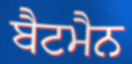
ਬੈਟਮੈਨ